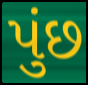
પુંછ